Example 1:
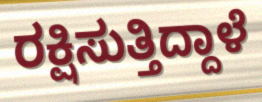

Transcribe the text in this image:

ರಕ್ಷಿಸುತ್ತಿದ್ದಾಳೆ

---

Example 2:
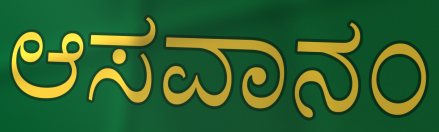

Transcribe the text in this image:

ಆಸವಾನಂ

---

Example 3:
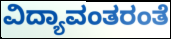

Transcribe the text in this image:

ವಿದ್ಯಾವಂತರಂತೆ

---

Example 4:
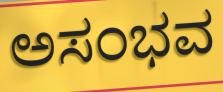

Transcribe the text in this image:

ಅಸಂಭವ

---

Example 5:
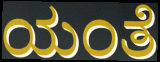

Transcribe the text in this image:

ಯಂತೆ